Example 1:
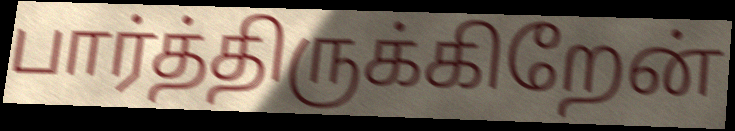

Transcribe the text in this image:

பார்த்திருக்கிறேன்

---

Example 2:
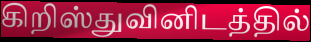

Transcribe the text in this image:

கிறிஸ்துவினிடத்தில்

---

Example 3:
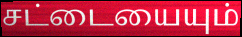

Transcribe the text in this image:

சட்டையையும்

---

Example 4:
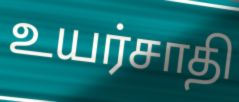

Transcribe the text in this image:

உயர்சாதி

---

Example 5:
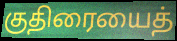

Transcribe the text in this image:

குதிரையைத்